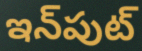
ఇన్‌పుట్